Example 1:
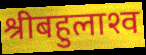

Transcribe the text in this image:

श्रीबहुलाश्व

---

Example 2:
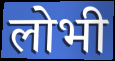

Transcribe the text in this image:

लोभी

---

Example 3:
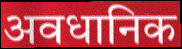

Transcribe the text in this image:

अवधानिक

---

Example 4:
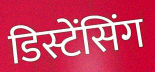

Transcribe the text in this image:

डिस्टेंसिंग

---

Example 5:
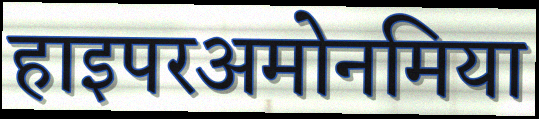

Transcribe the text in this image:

हाइपरअमोनमिया